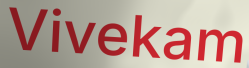
Vivekam